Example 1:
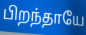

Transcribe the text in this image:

பிறந்தாயே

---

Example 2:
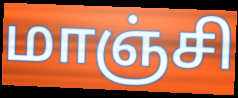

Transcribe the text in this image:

மாஞ்சி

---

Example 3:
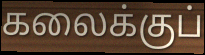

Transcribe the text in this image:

கலைக்குப்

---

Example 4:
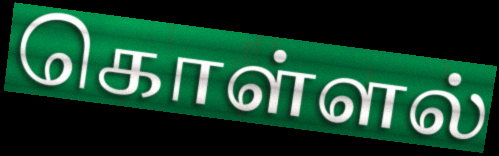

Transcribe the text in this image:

கொள்ளல்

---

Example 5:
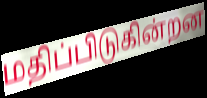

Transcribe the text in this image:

மதிப்பிடுகின்றன